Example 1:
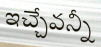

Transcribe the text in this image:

ఇచ్చేవన్నీ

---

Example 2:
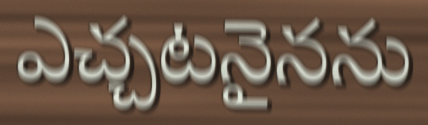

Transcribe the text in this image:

ఎచ్చటనైనను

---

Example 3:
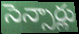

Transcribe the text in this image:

సెన్సార్లు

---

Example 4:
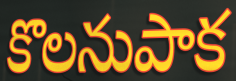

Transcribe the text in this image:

కొలనుపాక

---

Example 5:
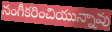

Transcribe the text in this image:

నంగీకరించియున్నావు